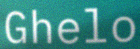
Ghelo